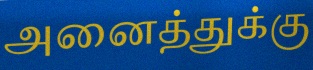
அனைத்துக்கு